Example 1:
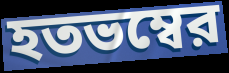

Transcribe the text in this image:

হতভম্বের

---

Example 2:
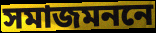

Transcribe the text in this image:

সমাজমননে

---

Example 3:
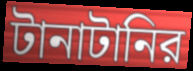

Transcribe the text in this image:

টানাটানির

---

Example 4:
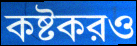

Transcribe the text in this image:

কষ্টকরও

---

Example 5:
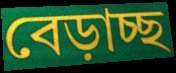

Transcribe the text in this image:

বেড়াচ্ছ